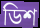
ডিশ